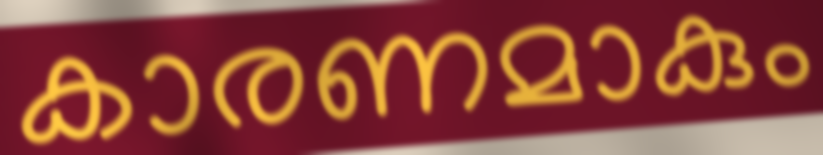
കാരണമാകും